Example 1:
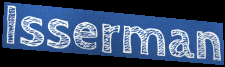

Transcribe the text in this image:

Isserman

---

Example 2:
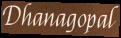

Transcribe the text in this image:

Dhanagopal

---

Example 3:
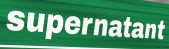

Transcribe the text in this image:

supernatant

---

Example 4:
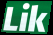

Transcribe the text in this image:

Lik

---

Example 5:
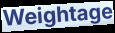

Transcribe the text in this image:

Weightage